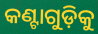
କଣ୍ଟାଗୁଡ଼ିକୁ